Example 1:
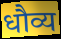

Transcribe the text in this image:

धौव्य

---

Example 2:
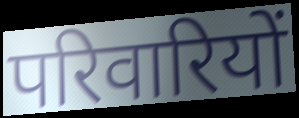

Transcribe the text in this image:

परिवारियों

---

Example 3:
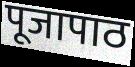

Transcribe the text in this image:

पूजापाठ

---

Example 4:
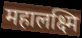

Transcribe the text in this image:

महालक्ष्मि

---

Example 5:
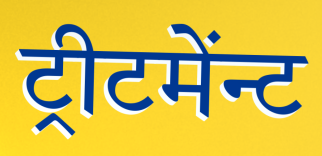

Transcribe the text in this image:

ट्रीटमेंन्ट